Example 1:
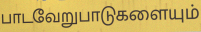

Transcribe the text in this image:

பாடவேறுபாடுகளையும்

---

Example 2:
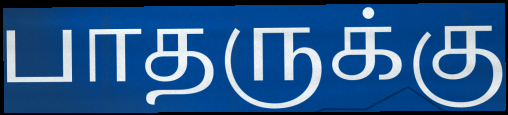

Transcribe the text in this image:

பாதருக்கு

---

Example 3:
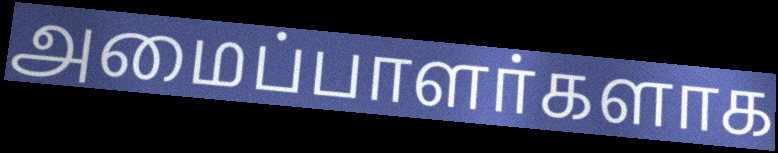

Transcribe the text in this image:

அமைப்பாளர்களாக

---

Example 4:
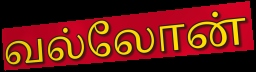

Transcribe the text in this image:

வல்லோன்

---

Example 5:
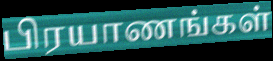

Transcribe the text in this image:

பிரயாணங்கள்